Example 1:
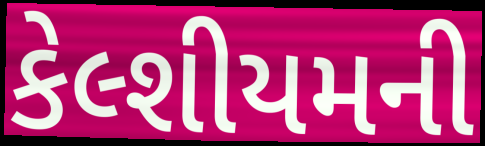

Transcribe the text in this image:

કેલ્શીયમની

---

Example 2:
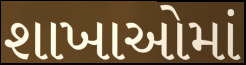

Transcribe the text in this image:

શાખાઓમાં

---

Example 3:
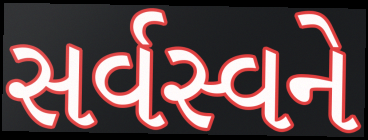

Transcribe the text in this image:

સર્વસ્વને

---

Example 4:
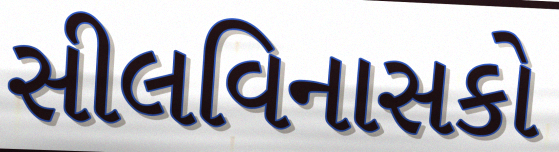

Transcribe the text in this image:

સીલવિનાસકો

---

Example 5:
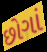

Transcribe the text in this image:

છોગાં